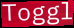
Toggl